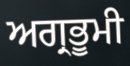
ਅਗ੍ਰਭੂਮੀ